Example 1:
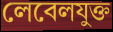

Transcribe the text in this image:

লেবেলযুক্ত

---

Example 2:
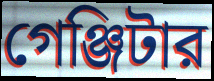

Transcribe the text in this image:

গেঞ্জিটার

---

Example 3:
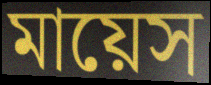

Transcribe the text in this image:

মায়েস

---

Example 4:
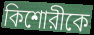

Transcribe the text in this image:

কিশোরীকে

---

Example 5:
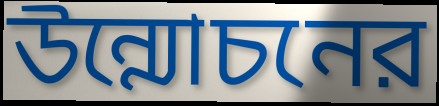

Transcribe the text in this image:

উন্মোচনের